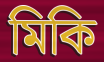
মিকি